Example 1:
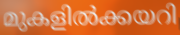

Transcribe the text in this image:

മുകളിൽക്കയറി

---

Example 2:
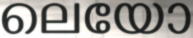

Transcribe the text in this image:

ലെയോ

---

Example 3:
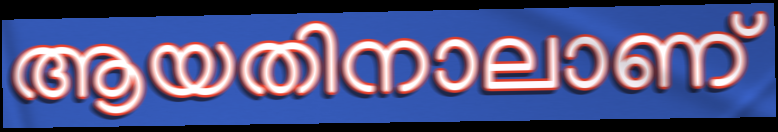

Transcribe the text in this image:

ആയതിനാലാണ്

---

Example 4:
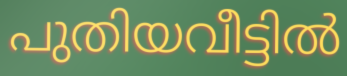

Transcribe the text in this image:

പുതിയവീട്ടിൽ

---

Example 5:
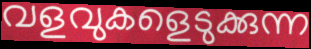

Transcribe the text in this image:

വളവുകളെടുക്കുന്ന